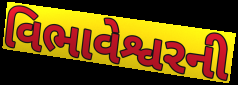
વિભાવેશ્વરની